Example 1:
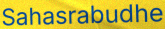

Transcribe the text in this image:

Sahasrabudhe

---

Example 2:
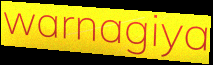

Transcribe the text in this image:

warnagiya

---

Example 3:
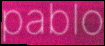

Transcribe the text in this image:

pablo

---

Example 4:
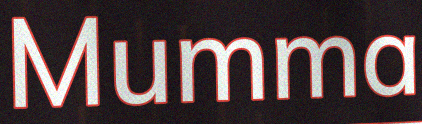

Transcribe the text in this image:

Mumma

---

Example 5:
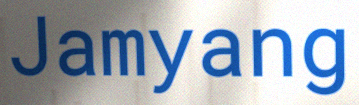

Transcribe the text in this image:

Jamyang